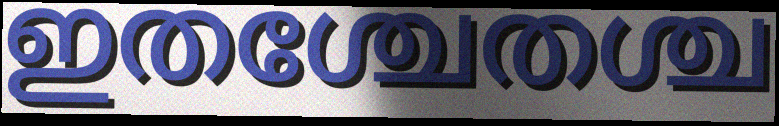
ഇതശ്ചേതശ്ച